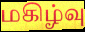
மகிழ்வு